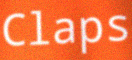
Claps